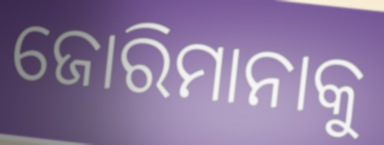
ଜୋରିମାନାକୁ